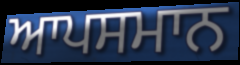
ਆਪਸਮਾਨ